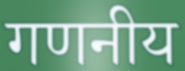
गणनीय